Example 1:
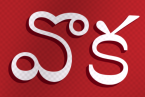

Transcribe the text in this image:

వొక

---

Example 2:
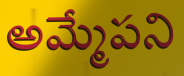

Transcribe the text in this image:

అమ్మేపని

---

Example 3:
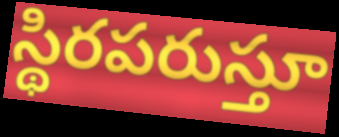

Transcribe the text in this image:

స్థిరపరుస్తూ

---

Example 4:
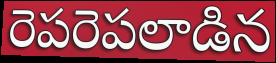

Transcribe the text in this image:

రెపరెపలాడిన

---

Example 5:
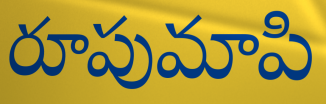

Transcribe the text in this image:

రూపుమాపి